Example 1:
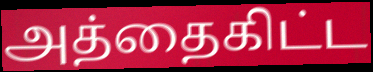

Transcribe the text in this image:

அத்தைகிட்ட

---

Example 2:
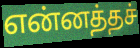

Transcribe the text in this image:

என்னத்தச்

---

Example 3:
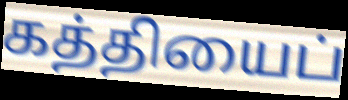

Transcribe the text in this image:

கத்தியைப்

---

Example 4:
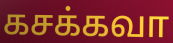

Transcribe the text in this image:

கசக்கவா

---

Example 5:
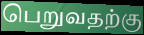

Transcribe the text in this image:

பெறுவதற்கு